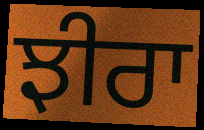
ਝੀਰਾ